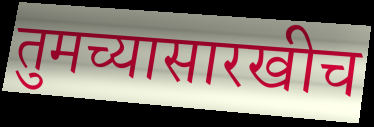
तुमच्यासारखीच